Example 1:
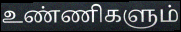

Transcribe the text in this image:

உண்ணிகளும்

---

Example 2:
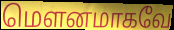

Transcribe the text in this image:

மெளனமாகவே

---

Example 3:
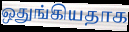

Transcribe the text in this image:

ஒதுங்கியதாக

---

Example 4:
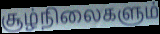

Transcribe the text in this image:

சூழ்நிலைகளும்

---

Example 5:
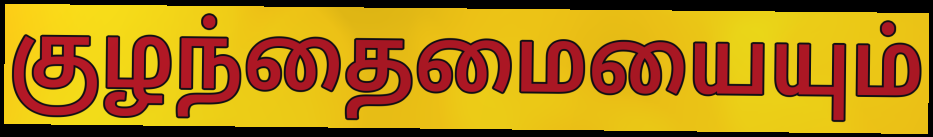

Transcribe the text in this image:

குழந்தைமையையும்